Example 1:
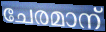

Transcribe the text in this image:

ചേരമാന്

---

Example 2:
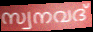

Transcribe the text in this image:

സ്വനവദ്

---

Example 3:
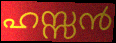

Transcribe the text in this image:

ഹസ്സൻ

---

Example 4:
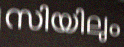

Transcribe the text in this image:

സിയിലും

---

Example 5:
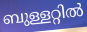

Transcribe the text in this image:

ബുള്ളറ്റിൽ